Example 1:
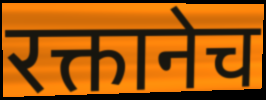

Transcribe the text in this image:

रक्तानेच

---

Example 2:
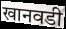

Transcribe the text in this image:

खानवडी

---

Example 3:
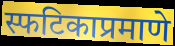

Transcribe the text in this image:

स्फटिकाप्रमाणे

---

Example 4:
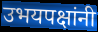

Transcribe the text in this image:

उभयपक्षांनी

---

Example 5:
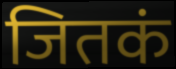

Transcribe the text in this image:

जितकं